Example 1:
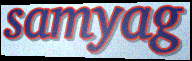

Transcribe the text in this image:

samyag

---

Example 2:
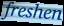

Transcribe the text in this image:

freshen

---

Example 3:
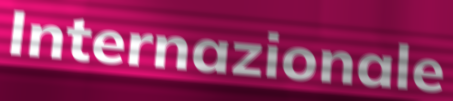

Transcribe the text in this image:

Internazionale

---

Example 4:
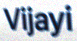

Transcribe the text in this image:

Vijayi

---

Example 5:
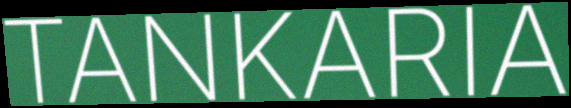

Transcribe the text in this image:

TANKARIA